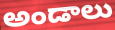
అండాలు